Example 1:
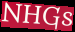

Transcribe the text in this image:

NHGs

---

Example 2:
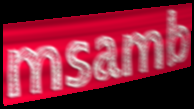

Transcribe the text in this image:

msamb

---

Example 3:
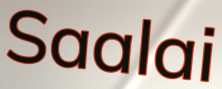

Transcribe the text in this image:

Saalai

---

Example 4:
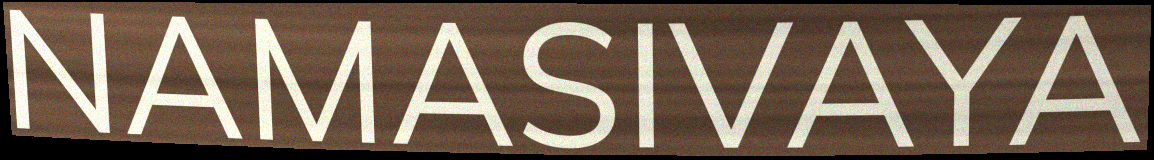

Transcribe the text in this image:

NAMASIVAYA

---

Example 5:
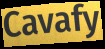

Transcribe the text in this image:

Cavafy